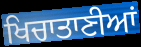
ਖਿਚਾਤਾਣੀਆਂ